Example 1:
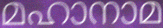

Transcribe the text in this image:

മഹാനാമ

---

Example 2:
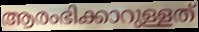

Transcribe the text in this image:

ആരംഭിക്കാറുള്ളത്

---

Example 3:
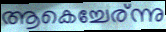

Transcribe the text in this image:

ആകെച്ചേര്ന്നു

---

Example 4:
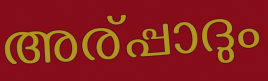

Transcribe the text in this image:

അര്പ്പാദും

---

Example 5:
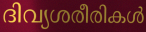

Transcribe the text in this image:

ദിവ്യശരീരികൾ